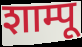
शाम्पू